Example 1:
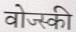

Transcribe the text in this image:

वोज्स्की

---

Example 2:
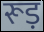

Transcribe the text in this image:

रूड़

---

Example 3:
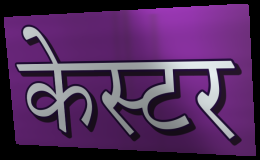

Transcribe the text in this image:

केस्टर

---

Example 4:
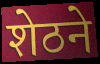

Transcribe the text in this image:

शेठने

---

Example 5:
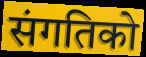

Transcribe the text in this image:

संगतिको